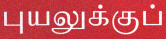
புயலுக்குப்